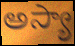
అస్యా